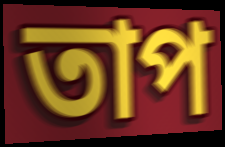
তাপ